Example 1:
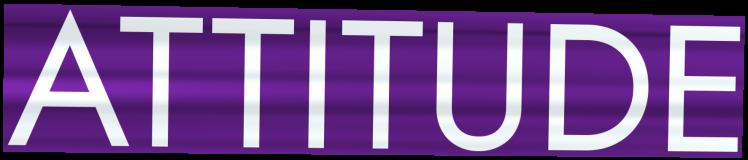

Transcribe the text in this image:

ATTITUDE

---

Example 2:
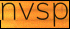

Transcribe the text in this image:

nvsp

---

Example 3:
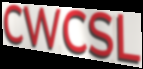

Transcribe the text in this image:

CWCSL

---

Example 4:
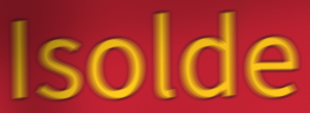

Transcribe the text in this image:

Isolde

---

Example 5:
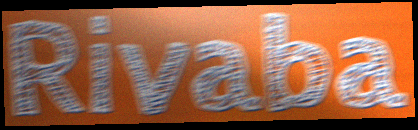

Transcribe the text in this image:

Rivaba